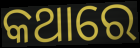
କଥାରେ